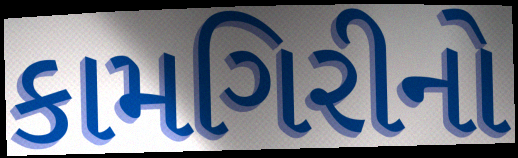
કામગિરીનો